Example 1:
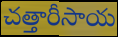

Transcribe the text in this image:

చత్తారీసాయ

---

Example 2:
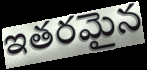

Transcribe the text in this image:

ఇతరమైన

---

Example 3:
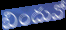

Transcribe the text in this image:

బిందువో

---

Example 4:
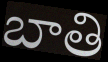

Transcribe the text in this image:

బాతి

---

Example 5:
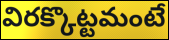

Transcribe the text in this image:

విరక్కొట్టమంటే